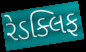
રેડક્લિફ